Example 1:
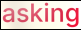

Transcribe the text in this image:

asking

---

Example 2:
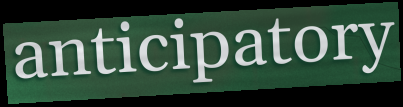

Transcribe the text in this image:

anticipatory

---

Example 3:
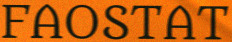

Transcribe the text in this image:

FAOSTAT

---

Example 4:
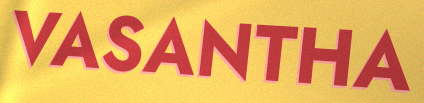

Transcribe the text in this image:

VASANTHA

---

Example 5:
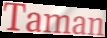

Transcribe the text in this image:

Taman